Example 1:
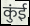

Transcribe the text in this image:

कुंई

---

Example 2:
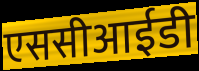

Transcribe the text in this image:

एससीआईडी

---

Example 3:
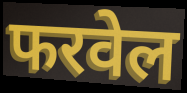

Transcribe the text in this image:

फरवेल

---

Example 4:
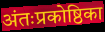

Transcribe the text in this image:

अंतःप्रकोष्ठिका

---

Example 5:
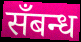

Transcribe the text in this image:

सँबन्ध